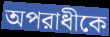
অপরাধীকে